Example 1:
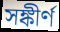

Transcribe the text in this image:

সঙ্কীর্ণ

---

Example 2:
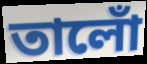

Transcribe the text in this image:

তালোঁ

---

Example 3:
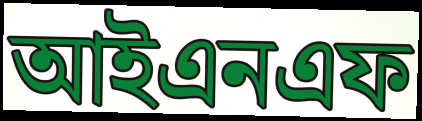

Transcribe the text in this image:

আইএনএফ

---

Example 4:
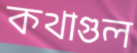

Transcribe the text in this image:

কথাগুল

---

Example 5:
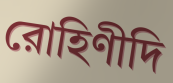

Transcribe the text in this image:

রোহিণীদি